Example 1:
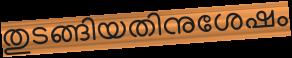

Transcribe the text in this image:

തുടങ്ങിയതിനുശേഷം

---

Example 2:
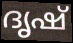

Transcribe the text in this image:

ദൃഷ്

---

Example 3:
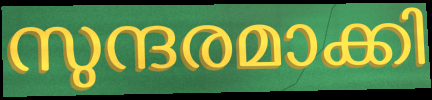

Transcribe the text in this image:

സുന്ദരമാക്കി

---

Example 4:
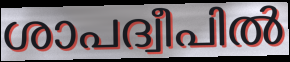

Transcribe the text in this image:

ശാപദ്വീപിൽ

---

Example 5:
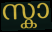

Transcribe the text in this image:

സ്കാ